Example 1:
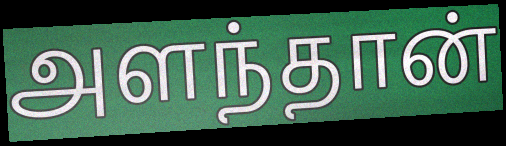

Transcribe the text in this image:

அளந்தான்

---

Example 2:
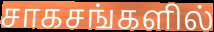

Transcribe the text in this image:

சாகசங்களில்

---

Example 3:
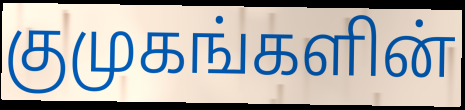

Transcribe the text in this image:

குமுகங்களின்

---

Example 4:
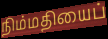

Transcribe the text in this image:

நிம்மதியைப்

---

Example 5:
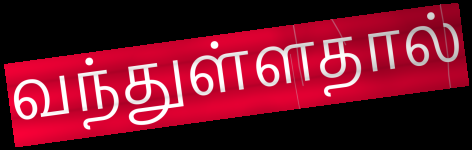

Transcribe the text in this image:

வந்துள்ளதால்